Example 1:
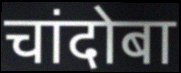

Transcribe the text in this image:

चांदोबा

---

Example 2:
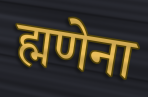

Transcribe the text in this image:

ह्मणेना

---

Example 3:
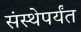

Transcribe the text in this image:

संस्थेपर्यंत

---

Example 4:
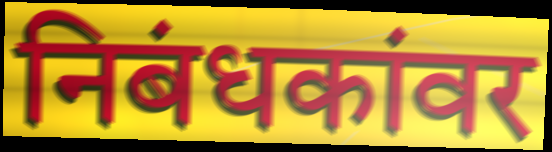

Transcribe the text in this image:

निबंधकांवर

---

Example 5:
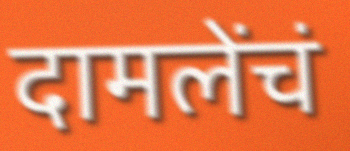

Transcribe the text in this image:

दामलेंचं